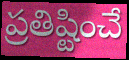
ప్రతిష్టించే